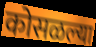
कोसळल्या